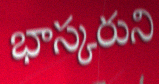
భాస్కరుని